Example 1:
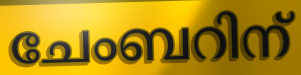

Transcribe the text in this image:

ചേംബറിന്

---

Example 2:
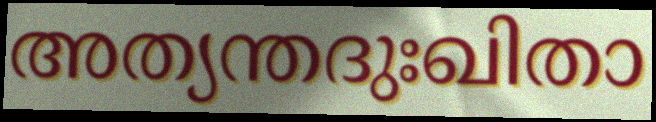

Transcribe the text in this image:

അത്യന്തദുഃഖിതാ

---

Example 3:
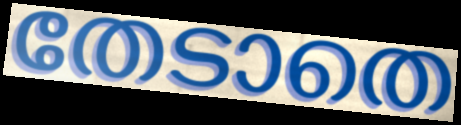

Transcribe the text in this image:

തേടാതെ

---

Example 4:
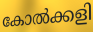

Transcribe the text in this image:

കോൽക്കളി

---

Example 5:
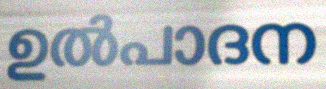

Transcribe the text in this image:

ഉൽപാദന